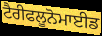
ਟੈਰੀਫਲੂਨੋਮਾਈਡ